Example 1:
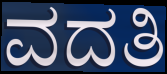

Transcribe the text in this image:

ವದತಿ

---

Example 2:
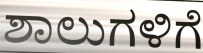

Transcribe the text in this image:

ಶಾಲುಗಳಿಗೆ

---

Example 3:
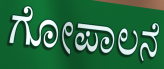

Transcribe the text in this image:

ಗೋಪಾಲನೆ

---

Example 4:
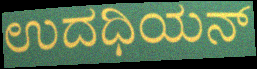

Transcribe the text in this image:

ಉದಧಿಯನ್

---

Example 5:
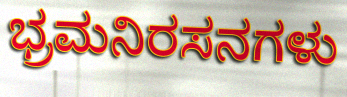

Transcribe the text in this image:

ಭ್ರಮನಿರಸನಗಳು